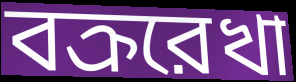
বক্ররেখা